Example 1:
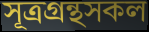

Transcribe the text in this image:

সূত্রগ্রন্থসকল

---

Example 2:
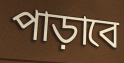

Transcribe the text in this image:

পাড়াবে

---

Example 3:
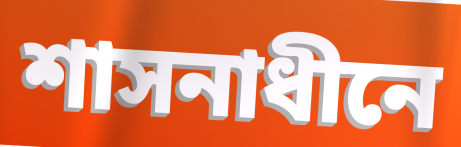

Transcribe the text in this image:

শাসনাধীনে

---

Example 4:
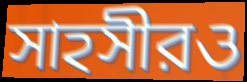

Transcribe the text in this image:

সাহসীরও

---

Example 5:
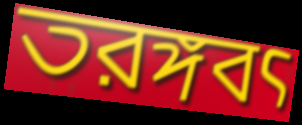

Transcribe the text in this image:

তরঙ্গবৎ